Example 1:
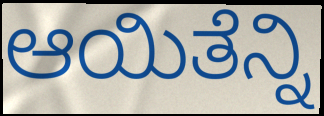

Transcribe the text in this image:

ಆಯಿತೆನ್ನಿ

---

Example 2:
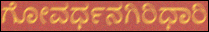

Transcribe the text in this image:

ಗೋವರ್ಧನಗಿರಿಧಾರಿ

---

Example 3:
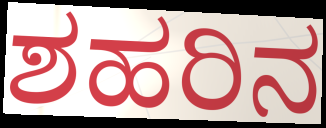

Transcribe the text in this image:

ಶಹರಿನ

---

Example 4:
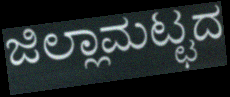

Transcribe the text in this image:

ಜಿಲ್ಲಾಮಟ್ಟದ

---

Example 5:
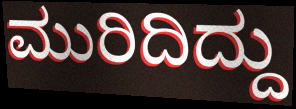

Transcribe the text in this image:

ಮುರಿದಿದ್ದು